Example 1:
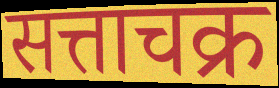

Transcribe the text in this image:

सत्ताचक्र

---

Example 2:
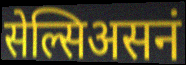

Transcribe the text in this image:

सेल्सिअसनं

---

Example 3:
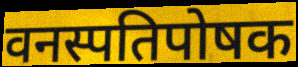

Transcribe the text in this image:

वनस्पतिपोषक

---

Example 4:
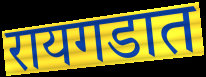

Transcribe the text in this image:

रायगडात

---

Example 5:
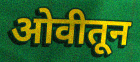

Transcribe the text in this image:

ओवीतून